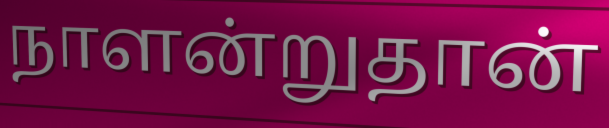
நாளன்றுதான்